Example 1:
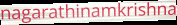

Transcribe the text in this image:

nagarathinamkrishna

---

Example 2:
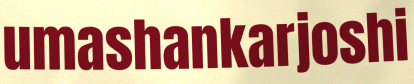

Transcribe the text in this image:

umashankarjoshi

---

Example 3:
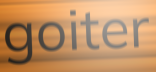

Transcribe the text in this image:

goiter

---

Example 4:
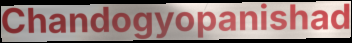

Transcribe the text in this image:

Chandogyopanishad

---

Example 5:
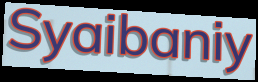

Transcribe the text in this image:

Syaibaniy